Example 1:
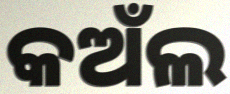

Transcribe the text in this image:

କଅଁଲ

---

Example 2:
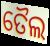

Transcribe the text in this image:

ତୈଲ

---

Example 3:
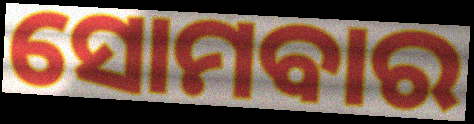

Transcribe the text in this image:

ସୋମବାର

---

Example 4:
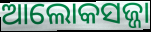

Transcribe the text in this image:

ଆଲୋକସଜ୍ଜା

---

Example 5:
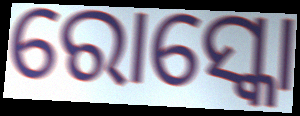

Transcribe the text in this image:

ରୋସ୍କୋ